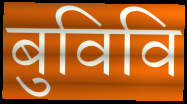
बुविवि